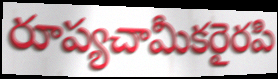
రూప్యచామీకరైరపి